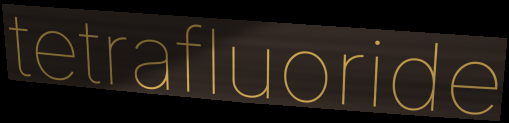
tetrafluoride